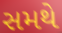
સમથે